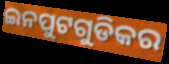
ଇନପୁଟଗୁଡିକର